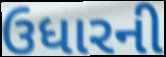
ઉધારની